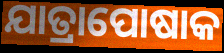
ଯାତ୍ରାପୋଷାକ